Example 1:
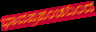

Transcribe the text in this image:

ಭಾವಪ್ರಪಂಚದಿಂದ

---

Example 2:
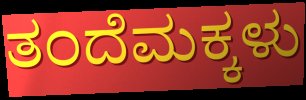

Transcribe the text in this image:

ತಂದೆಮಕ್ಕಳು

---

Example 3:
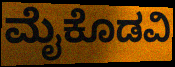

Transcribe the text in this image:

ಮೈಕೊಡವಿ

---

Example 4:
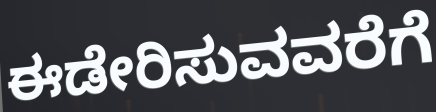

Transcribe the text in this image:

ಈಡೇರಿಸುವವರೆಗೆ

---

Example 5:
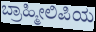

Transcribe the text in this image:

ಬ್ರಾಹ್ಮೀಲಿಪಿಯ